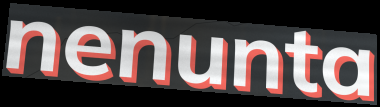
nenunta